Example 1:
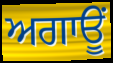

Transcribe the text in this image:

ਅਗਾਊਂ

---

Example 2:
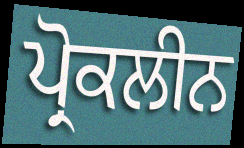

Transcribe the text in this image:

ਪ੍ਰੋਕਲੀਨ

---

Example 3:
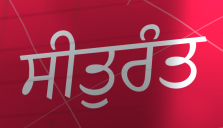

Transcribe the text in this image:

ਸੀਤੁਰੰਤ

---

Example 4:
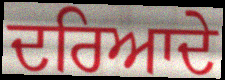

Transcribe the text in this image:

ਦਰਿਆਦੇ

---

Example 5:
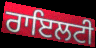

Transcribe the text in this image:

ਰਾਇਲਟੀ